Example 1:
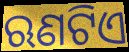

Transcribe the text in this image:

ଋଣଟିଏ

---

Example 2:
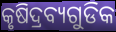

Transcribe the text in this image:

କୃଷିଦ୍ରବ୍ୟଗୁଡିକ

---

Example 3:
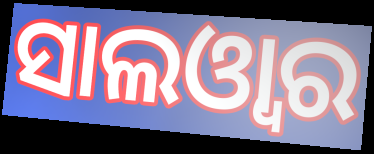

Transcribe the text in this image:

ସାଲଓ୍ଵାର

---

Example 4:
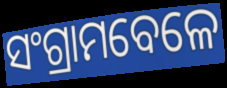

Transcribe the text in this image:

ସଂଗ୍ରାମବେଳେ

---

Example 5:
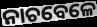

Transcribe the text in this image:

ନାଚବେଳେ